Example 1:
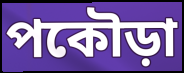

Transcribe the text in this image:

পকৌড়া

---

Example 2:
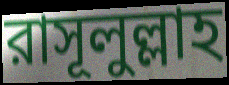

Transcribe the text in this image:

রাসূলুল্লাহ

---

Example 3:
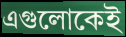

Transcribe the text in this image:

এগুলোকেই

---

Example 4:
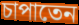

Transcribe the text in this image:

চাপাতেন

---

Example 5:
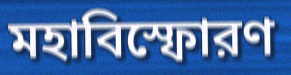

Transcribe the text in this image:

মহাবিস্ফোরণ